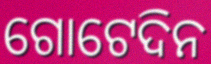
ଗୋଟେଦିନ